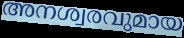
അനശ്വരവുമായ